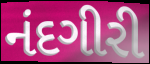
નંદગીરી